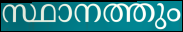
സ്ഥാനത്തും